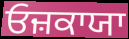
ਓਜ਼ਕਾਯਾ